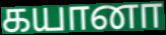
கயானா